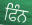
ਫਿੰਨ